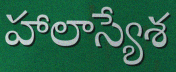
హాలాస్యేశ